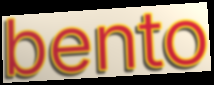
bento